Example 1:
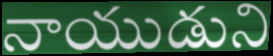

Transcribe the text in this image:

నాయుడుని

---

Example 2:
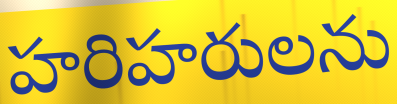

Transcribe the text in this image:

హరిహరులను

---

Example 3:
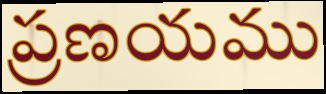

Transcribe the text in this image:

ప్రణయము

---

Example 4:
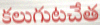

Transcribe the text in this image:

కలుగుటచేత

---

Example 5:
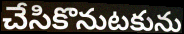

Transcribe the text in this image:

చేసికొనుటకును